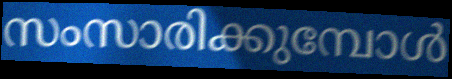
സംസാരിക്കുമ്പോൾ